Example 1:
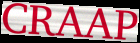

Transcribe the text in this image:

CRAAP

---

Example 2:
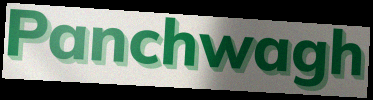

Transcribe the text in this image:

Panchwagh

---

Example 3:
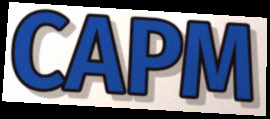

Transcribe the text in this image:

CAPM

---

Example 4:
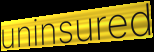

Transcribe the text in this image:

uninsured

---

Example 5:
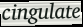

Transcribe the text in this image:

cingulate